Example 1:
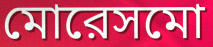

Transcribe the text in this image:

মোরেসমো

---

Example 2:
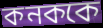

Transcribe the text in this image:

কনককে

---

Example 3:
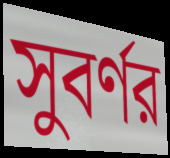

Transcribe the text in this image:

সুবর্ণর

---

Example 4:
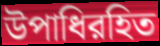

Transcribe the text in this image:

উপাধিরহিত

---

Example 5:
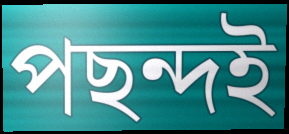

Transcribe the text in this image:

পছন্দই